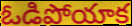
ఓడిపోయాక